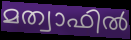
മത്വാഫിൽ